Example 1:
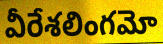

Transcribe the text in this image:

వీరేశలింగమో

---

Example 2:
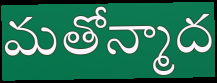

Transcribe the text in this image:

మతోన్మాద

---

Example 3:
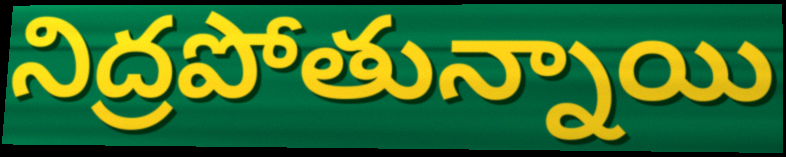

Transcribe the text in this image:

నిద్రపోతున్నాయి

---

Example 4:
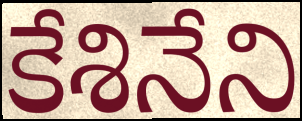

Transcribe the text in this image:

కేశినేని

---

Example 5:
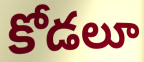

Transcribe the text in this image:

కోడలూ